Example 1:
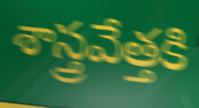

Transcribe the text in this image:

శాస్త్రవేత్తకి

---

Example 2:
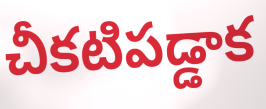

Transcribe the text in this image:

చీకటిపడ్డాక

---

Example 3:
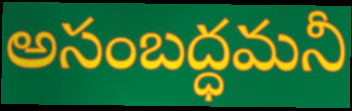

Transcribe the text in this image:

అసంబద్ధమనీ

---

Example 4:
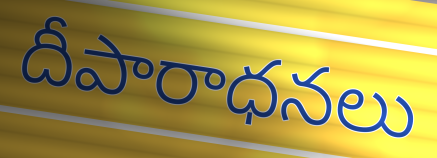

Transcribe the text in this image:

దీపారాధనలు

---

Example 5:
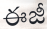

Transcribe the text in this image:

ఈజీ